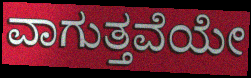
ವಾಗುತ್ತವೆಯೇ